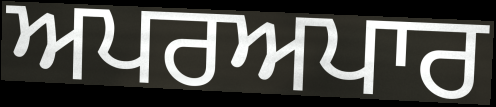
ਅਪਰਅਪਾਰ